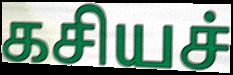
கசியச்